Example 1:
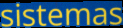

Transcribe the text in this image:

sistemas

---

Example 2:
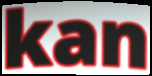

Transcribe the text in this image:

kan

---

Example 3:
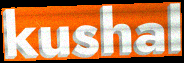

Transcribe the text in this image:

kushal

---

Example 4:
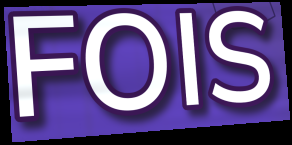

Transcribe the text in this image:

FOIS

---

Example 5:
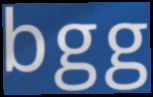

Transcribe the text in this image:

bgg